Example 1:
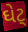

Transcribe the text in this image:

ઘેટ્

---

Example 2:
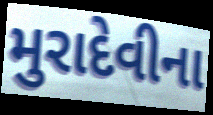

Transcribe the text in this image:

મુરાદેવીના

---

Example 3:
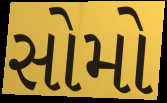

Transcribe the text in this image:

સોમો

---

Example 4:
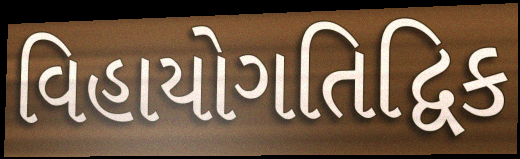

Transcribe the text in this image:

વિહાયોગતિદ્વિક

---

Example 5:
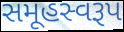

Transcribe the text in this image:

સમૂહસ્વરૂપ